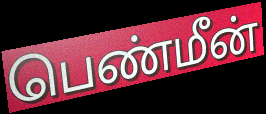
பெண்மீன்